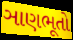
ઞાણભૂતો